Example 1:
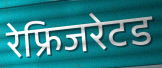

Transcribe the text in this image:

रेफ्रिजरेटड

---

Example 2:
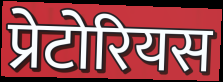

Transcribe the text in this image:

प्रेटोरियस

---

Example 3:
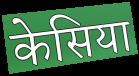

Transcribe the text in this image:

केसिया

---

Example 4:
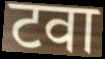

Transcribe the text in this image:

टवा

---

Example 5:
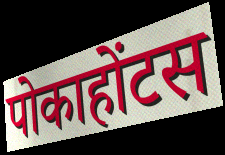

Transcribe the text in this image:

पोकाहोंटस